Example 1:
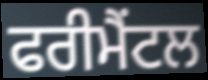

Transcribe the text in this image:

ਫਰੀਮੈਂਟਲ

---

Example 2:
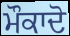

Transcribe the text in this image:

ਮੌਕਾਦੋ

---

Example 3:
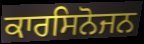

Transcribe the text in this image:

ਕਾਰਸਿਨੋਜਨ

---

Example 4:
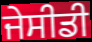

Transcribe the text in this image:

ਜੇਸੀਡੀ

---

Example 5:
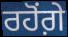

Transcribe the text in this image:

ਰਹੋਂਗ਼ੇ